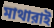
মাথারাই